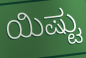
ಯಿಷ್ಟು